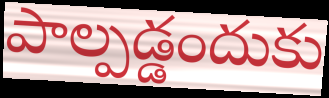
పాల్పడ్డందుకు